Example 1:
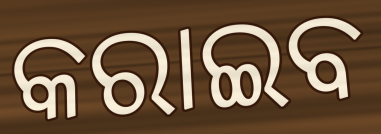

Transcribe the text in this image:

କରାଇବ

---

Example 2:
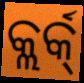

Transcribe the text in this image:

କ୍ଲର୍କ୍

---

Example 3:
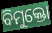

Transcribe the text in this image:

ବିମୁକ୍ତୋ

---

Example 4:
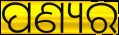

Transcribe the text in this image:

ପଣ୍ୟର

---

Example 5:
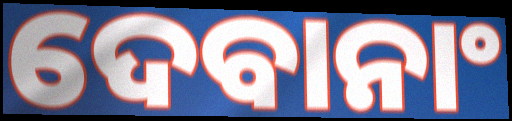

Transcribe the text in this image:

ଦେବାନାଂ